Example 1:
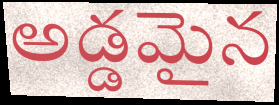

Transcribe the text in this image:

అడ్డమైన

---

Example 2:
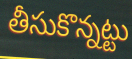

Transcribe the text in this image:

తీసుకొన్నట్టు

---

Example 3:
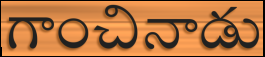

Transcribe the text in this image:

గాంచినాడు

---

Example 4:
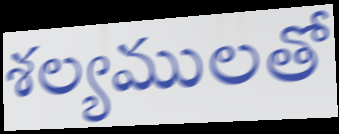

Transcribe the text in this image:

శల్యములతో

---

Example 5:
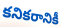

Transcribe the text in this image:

కనికరానికీ